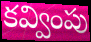
కవ్వింపు